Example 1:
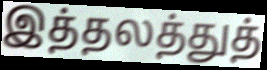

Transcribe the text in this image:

இத்தலத்துத்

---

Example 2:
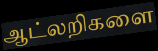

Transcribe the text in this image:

ஆட்லறிகளை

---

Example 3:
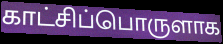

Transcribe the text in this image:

காட்சிப்பொருளாக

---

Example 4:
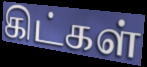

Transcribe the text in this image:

கிட்கள்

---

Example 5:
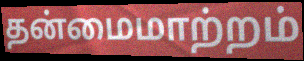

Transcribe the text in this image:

தன்மைமாற்றம்